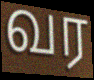
வர